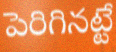
పెరిగినట్టే